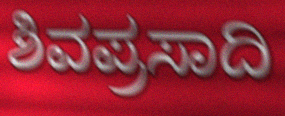
ಶಿವಪ್ರಸಾದಿ